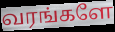
வரங்களே